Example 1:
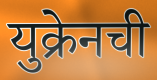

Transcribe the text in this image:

युक्रेनची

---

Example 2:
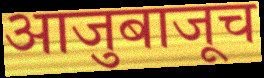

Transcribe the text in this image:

आजुबाजूच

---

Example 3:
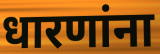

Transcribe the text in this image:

धारणांना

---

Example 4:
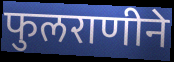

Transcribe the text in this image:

फुलराणीने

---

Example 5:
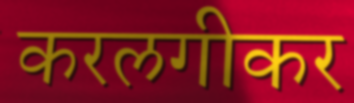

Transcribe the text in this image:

करलगीकर